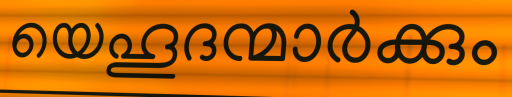
യെഹൂദന്മാർക്കും